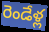
రెండేళ్ల